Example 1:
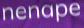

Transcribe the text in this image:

nenape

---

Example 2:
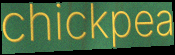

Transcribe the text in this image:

chickpea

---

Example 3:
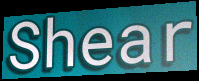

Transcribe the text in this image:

Shear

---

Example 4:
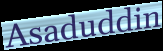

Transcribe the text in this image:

Asaduddin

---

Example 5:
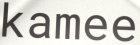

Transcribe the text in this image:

kamee